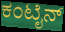
ಕಂಟೈನ್